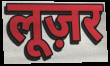
लूज़र